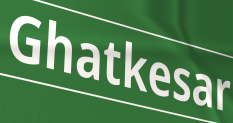
Ghatkesar